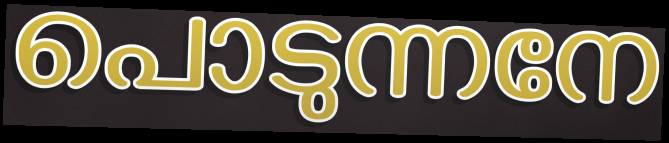
പൊടുന്നനേ